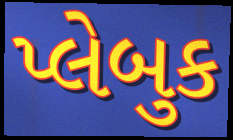
પ્લેબુક